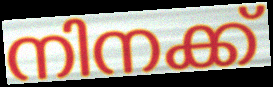
നിനക്ക്